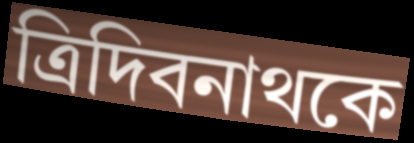
ত্রিদিবনাথকে